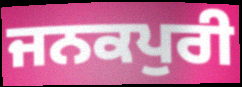
ਜਨਕਪੁਰੀ